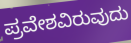
ಪ್ರವೇಶವಿರುವುದು